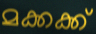
മക്കക്ക്